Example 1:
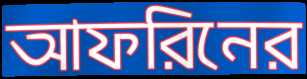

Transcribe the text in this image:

আফরিনের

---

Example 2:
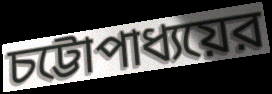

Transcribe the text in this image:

চট্টোপাধ্যয়ের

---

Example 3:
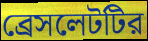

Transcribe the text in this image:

ব্রেসলেটটির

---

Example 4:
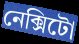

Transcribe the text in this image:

নেক্সিটো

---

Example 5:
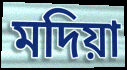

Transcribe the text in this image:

মদিয়া